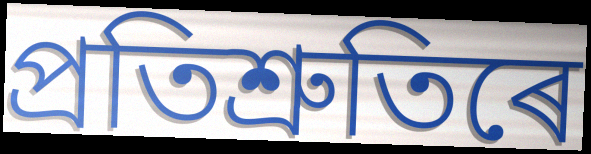
প্ৰতিশ্ৰুতিৰে